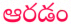
ఆరడం